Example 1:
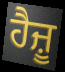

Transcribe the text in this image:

ਹੈਜ਼ੂ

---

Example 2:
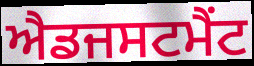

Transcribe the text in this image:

ਐਡਜਸਟਮੈਂਟ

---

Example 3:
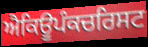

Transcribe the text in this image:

ਐਕਿਊਪੰਕਚਰਿਸਟ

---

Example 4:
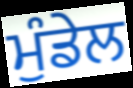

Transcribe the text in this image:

ਮੁੰਡੇਲ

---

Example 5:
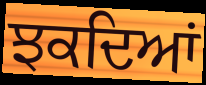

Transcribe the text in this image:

ਝਕਦਿਆਂ